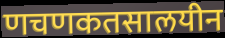
णचणकतसालयीन